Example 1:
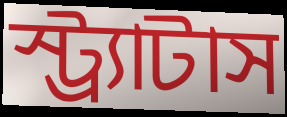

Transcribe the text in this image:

স্ট্র্যাটাস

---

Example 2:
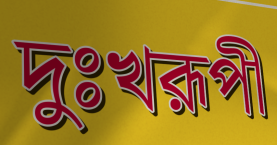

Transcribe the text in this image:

দুঃখরূপী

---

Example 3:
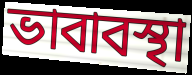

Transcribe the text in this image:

ভাবাবস্থা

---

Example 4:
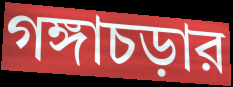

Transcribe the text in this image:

গঙ্গাচড়ার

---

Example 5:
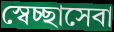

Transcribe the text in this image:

স্বেচ্ছাসেবা